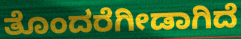
ತೊಂದರೆಗೀಡಾಗಿದೆ